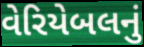
વેરિયેબલનું